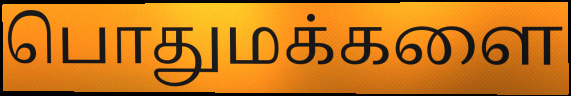
பொதுமக்களை